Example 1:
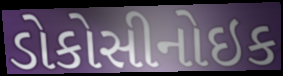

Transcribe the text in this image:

ડોકોસીનોઇક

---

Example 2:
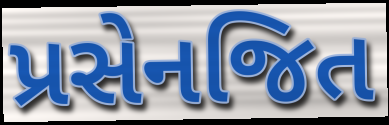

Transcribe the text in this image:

પ્રસેનજિત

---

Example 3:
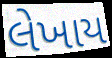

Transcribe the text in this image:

લેખાય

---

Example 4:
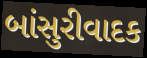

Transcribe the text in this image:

બાંસુરીવાદક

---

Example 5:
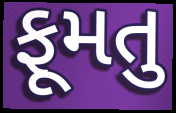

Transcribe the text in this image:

ફૂમતુ